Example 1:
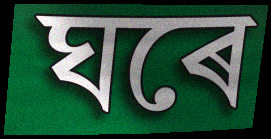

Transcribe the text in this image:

ঘৰে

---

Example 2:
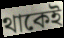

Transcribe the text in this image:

থাকেই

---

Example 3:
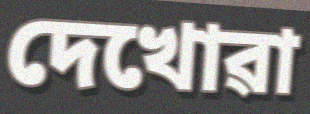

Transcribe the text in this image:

দেখোৱা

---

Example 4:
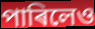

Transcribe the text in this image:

পাৰিলেও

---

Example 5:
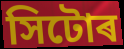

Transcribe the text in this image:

সিটোৰ